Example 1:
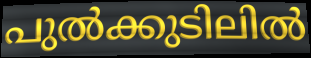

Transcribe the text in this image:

പുൽക്കുടിലിൽ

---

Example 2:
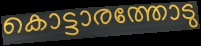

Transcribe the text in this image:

കൊട്ടാരത്തോടു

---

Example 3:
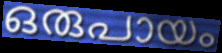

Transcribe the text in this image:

ഒരുപായം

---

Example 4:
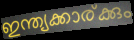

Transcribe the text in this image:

ഇന്ത്യക്കാര്ക്കും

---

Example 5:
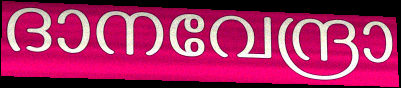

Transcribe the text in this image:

ദാനവേന്ദ്രാ